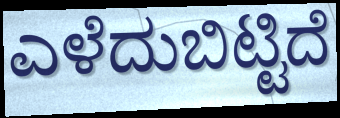
ಎಳೆದುಬಿಟ್ಟಿದೆ